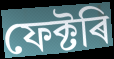
ফেক্টৰি